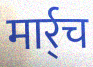
मार्र्च